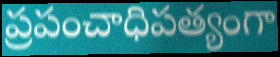
ప్రపంచాధిపత్యంగా